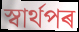
স্বাৰ্থপৰ